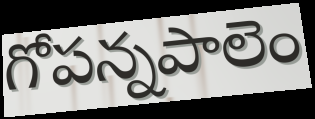
గోపన్నపాలెం